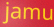
jamu